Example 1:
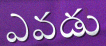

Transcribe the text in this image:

ఎవడు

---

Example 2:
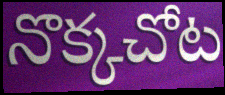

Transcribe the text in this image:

నొక్కచోట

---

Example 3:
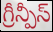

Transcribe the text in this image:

గ్రీన్పీస్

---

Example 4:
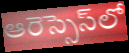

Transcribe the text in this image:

ఆరెస్సెస్‌లో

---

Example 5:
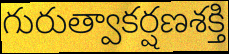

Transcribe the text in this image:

గురుత్వాకర్షణశక్తి